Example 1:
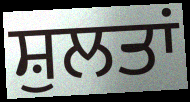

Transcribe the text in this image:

ਸ਼ੁਲਤਾਂ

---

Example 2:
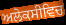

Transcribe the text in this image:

ਅਲੇਕਸੀਵਿਚ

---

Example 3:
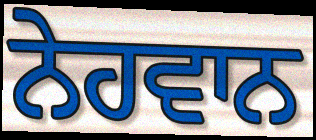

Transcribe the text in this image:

ਨੇਹਵਾਨ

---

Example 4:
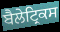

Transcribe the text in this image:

ਬੈਲੇਟ੍ਰਿਕਸ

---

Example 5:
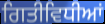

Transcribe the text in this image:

ਗਿਤੀਵਿਧੀਆਂ